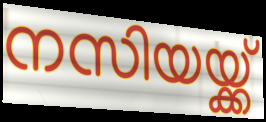
നസിയയ്ക്ക്